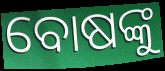
ବୋଷଙ୍କୁ